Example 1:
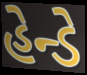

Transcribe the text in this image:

હેન્ડે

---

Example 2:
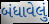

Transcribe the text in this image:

બંધાવેલું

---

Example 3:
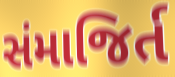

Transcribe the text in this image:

સંમાજિર્ત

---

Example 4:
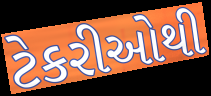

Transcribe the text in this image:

ટેકરીઓથી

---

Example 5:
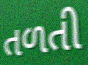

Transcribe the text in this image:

તળતી